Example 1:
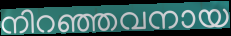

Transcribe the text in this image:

നിറഞ്ഞവനായ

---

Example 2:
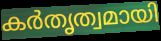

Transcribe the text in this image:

കർതൃത്വമായി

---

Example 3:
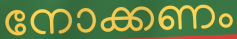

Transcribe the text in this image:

നോക്കണം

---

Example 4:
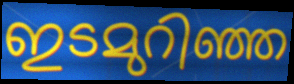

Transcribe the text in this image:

ഇടമുറിഞ്ഞ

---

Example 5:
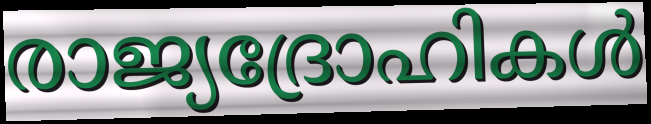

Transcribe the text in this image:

രാജ്യദ്രോഹികൾ